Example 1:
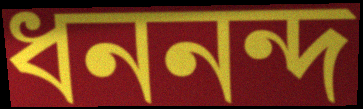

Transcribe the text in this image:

ধননন্দ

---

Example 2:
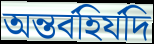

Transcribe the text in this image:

অন্তর্বহির্যদি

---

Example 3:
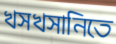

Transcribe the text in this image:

খসখসানিতে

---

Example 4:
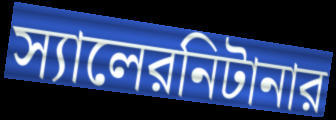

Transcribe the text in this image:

স্যালেরনিটানার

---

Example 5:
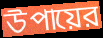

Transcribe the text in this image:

উপায়ের